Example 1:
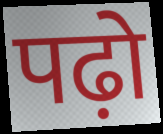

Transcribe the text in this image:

पढ़ो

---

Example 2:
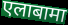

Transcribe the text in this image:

एलाबामा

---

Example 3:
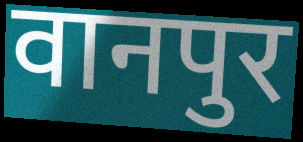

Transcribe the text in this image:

वानपुर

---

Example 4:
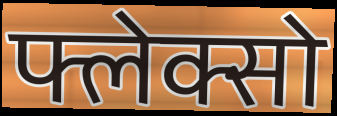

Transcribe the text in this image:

फ्लेक्सो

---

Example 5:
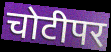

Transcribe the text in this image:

चोटीपर